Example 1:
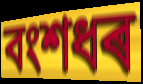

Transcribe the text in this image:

বংশধৰ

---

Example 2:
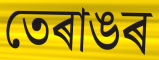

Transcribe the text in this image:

তেৰাঙৰ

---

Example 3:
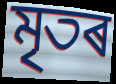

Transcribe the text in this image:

মৃতৰ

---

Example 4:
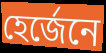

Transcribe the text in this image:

হেৰ্জেনে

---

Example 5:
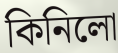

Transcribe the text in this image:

কিনিলো